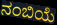
ನಂಬಿಯೆ